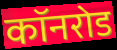
कॉनरोड